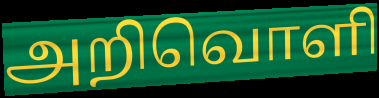
அறிவொளி